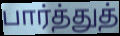
பார்த்துத்